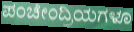
ಪಂಚೇಂದ್ರಿಯಗಳೂ